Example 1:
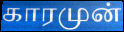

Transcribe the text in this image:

காரமுன்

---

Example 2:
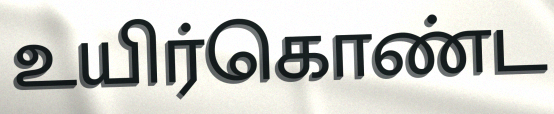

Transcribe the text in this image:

உயிர்கொண்ட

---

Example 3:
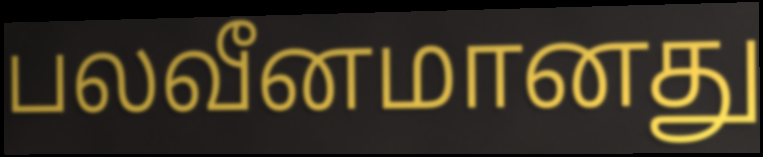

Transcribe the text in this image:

பலவீனமானது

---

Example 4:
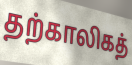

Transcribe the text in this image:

தற்காலிகத்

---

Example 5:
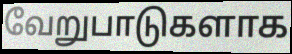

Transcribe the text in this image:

வேறுபாடுகளாக